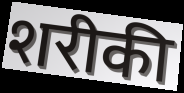
शरीकी